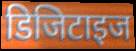
डिजिटाइज